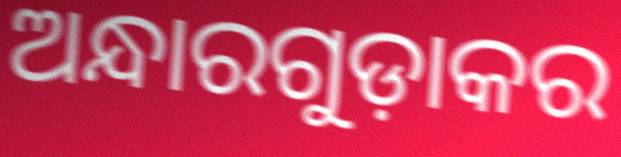
ଅନ୍ଧାରଗୁଡ଼ାକର